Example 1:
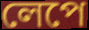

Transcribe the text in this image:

লেপে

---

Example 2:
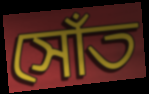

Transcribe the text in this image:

সোঁত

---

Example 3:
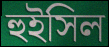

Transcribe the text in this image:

হুইসিল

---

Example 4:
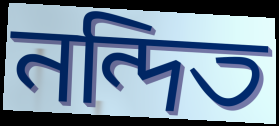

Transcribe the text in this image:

নন্দিত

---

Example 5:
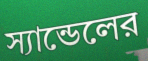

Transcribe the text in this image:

স্যান্ডেলের